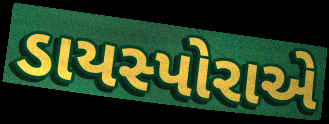
ડાયસ્પોરાએ